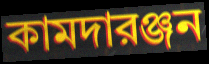
কামদারঞ্জন